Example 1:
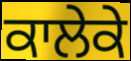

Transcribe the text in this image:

ਕਾਲੇਕੇ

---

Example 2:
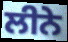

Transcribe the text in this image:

ਲੀਨੇ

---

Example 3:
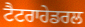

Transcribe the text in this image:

ਟੈਟਰਾਹੇਡਰਲ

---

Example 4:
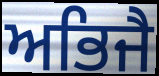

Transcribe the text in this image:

ਅਭਿਜੈ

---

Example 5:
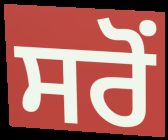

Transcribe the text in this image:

ਸਰੋਂ